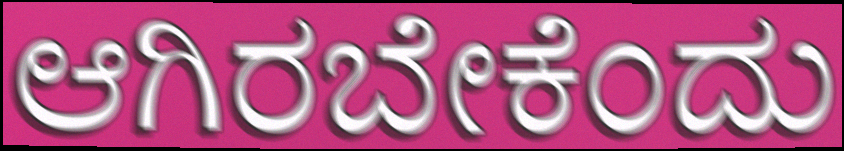
ಆಗಿರಬೇಕೆಂದು